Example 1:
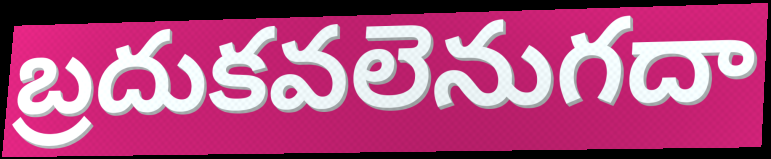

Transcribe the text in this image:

బ్రదుకవలెనుగదా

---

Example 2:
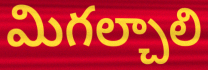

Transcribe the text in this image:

మిగల్చాలి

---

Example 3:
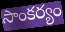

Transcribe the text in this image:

సాంకర్యం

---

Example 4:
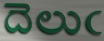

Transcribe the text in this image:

దెలుఁ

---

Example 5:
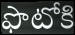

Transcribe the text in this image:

ఫొటోకి